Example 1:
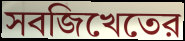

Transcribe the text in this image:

সবজিখেতের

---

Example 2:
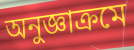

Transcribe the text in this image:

অনুজ্ঞাক্রমে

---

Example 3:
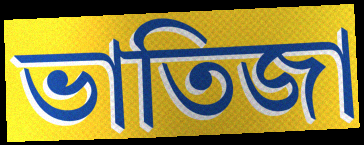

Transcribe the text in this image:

ভাতিজা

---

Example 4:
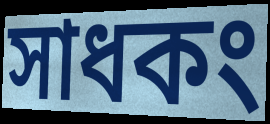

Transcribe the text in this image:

সাধকং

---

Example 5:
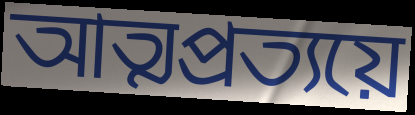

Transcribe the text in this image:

আত্মপ্রত্যয়ে